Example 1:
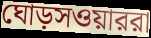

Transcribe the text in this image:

ঘোড়সওয়াররা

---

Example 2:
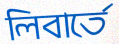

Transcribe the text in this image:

লিবার্তে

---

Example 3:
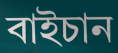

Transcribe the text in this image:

বাইচান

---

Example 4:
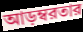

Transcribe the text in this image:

আড়ম্বরতার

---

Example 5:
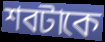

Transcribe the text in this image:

শবটাকে